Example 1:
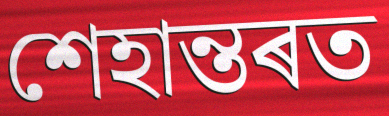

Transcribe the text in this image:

শেহান্তৰত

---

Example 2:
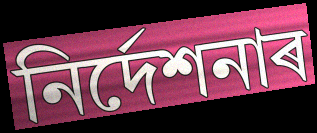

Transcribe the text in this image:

নিৰ্দেশনাৰ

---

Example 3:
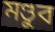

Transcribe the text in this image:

মণ্ডুব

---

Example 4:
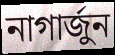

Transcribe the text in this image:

নাগাৰ্জুন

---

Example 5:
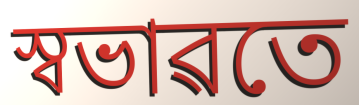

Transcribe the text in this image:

স্বভাৱতে